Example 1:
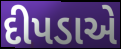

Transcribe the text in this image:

દીપડાએ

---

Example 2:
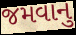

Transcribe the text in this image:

જમવાનુ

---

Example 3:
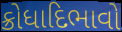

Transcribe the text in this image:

ક્રોધાદિભાવો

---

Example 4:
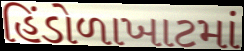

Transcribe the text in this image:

હિંડોળાખાટમાં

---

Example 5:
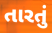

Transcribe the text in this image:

તારતું